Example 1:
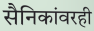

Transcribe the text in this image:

सैनिकांवरही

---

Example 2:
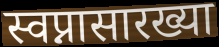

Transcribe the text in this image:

स्वप्नासारख्या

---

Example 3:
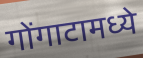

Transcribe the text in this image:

गोंगाटामध्ये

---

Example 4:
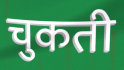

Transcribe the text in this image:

चुकती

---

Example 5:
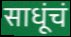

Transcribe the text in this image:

साधूंचं